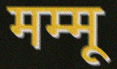
मम्मू